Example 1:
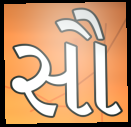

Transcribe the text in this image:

સૌ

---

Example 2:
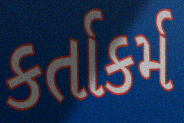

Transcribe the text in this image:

કર્તાકર્મ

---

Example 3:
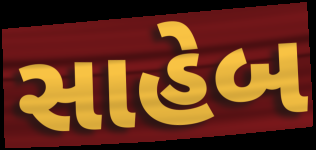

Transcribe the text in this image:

સાહેબ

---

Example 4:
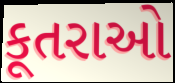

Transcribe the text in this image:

કૂતરાઓ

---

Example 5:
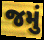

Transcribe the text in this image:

જમું